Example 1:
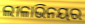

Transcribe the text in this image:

ଲୀଳାଭିନୟର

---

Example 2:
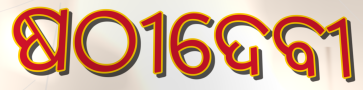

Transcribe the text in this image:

ଷଠୀଦେବୀ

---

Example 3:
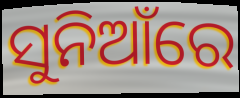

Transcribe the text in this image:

ସୁନିଆଁରେ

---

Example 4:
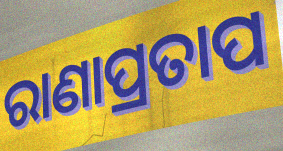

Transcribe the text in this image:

ରାଣାପ୍ରତାପ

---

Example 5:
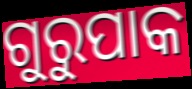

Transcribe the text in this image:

ଗୁରୁପାକ